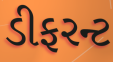
ડીફરન્ટ